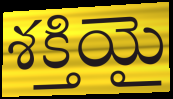
శక్తియై